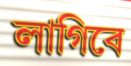
লাগিবে